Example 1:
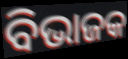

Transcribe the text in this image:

ବିଭାଜକ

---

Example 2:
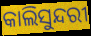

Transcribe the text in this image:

କାଲିସୁନ୍ଦରୀ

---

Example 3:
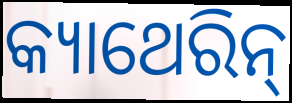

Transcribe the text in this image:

କ୍ୟାଥେରିନ୍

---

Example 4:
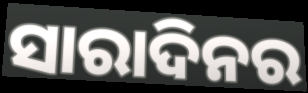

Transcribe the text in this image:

ସାରାଦିନର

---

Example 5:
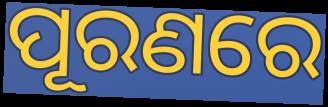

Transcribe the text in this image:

ପୂରଣରେ